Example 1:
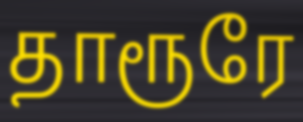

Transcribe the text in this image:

தாரூரே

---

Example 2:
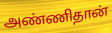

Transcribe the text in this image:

அண்ணிதான்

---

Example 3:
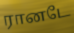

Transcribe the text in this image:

ரானடே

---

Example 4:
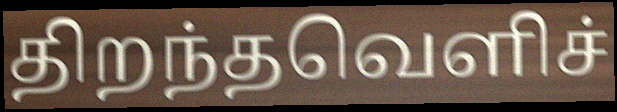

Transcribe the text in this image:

திறந்தவெளிச்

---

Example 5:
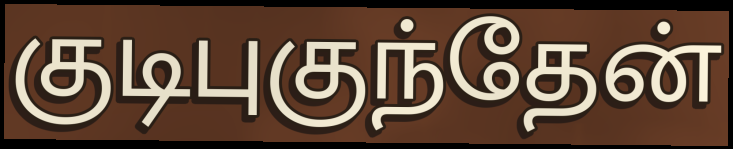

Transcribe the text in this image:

குடிபுகுந்தேன்